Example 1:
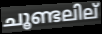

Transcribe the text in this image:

ചൂണ്ടലില്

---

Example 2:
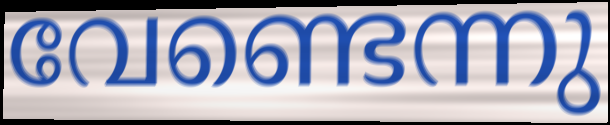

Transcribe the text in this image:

വേണ്ടെന്നു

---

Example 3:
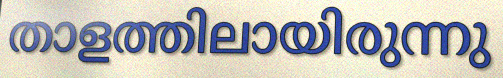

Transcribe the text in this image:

താളത്തിലായിരുന്നു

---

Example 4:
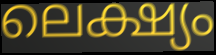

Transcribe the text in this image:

ലെക്ഷ്യം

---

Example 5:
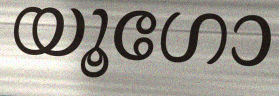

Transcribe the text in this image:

യൂഗോ